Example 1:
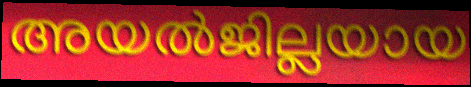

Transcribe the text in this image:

അയൽജില്ലയായ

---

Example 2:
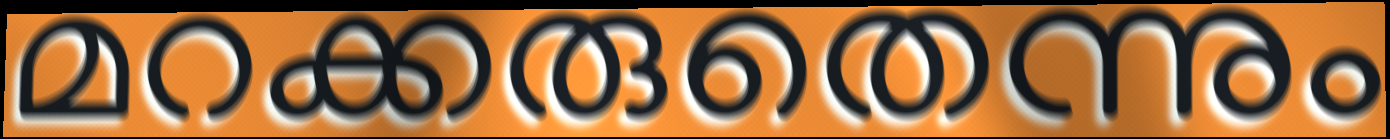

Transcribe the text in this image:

മറക്കരുതെന്നും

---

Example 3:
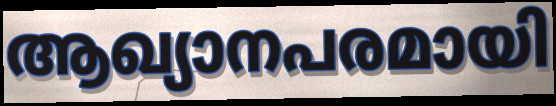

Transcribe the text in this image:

ആഖ്യാനപരമായി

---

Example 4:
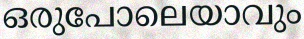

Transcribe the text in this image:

ഒരുപോലെയാവും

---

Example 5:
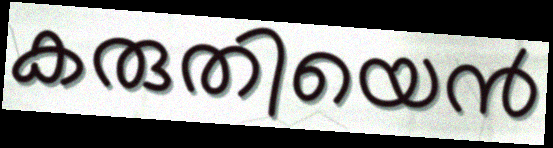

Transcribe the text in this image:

കരുതിയെൻ